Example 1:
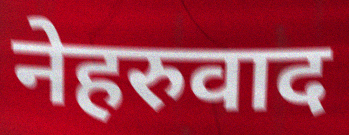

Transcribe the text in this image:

नेहरुवाद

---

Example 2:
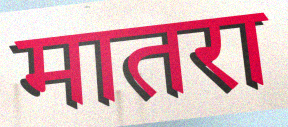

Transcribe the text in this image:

मातरा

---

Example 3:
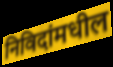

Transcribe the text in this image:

निविदांमधील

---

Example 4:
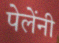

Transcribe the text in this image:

पेलेंनी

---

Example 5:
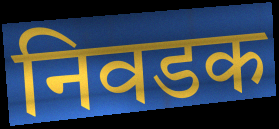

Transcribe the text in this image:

निवडक